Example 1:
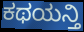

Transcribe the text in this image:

ಕಥಯನ್ತಿ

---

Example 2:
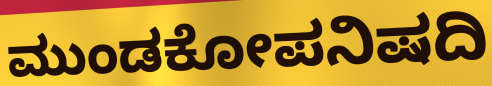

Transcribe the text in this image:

ಮುಂಡಕೋಪನಿಷದಿ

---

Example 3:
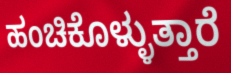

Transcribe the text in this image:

ಹಂಚಿಕೊಳ್ಳುತ್ತಾರೆ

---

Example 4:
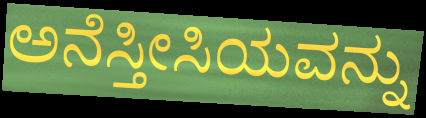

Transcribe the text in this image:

ಅನೆಸ್ತೀಸಿಯವನ್ನು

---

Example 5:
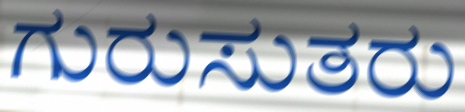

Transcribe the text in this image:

ಗುರುಸುತರು